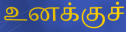
உனக்குச்